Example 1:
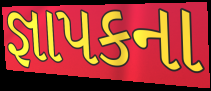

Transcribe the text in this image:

જ્ઞાપકના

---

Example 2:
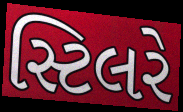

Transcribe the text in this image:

સ્ટિલરે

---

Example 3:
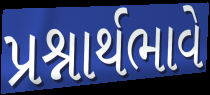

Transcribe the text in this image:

પ્રશ્નાર્થભાવે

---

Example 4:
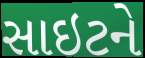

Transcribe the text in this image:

સાઇટને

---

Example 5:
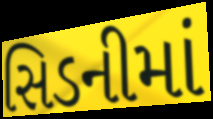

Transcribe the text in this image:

સિડનીમાં